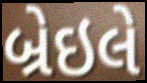
બ્રેઇલે